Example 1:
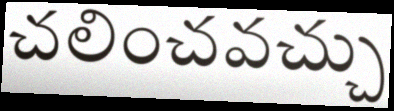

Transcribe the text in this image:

చలించవచ్చు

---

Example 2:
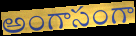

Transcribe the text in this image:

అంగాసంగా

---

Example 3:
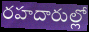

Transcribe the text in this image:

రహదారుల్లో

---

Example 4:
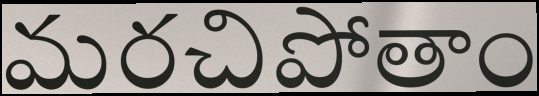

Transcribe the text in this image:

మరచిపోతాం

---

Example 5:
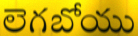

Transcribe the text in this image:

లెగబోయు